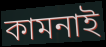
কামনাই